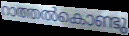
റാത്തൽകൊണ്ടു